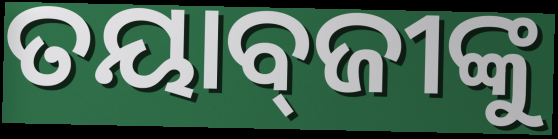
ତୟାବ୍‌ଜୀଙ୍କୁ